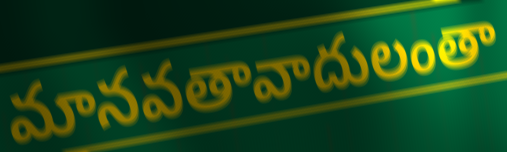
మానవతావాదులంతా